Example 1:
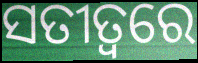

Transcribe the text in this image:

ସତୀତ୍ୱରେ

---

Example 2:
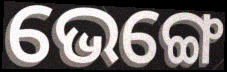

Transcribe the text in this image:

ଭେଙ୍ଗେ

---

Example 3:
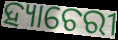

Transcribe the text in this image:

ହ୍ୟାଚେରୀ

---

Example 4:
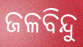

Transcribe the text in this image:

ଜଳବିନ୍ଦୁ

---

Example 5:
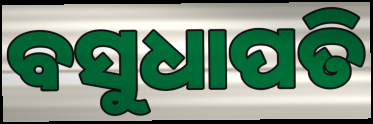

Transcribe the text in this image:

ବସୁଧାପତି